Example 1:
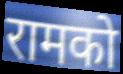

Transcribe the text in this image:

रामको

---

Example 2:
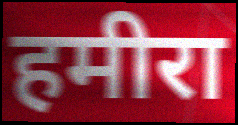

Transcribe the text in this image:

हमीरा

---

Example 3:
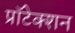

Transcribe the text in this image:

प्रॉटेक्शन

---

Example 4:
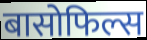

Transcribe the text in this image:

बासोफिल्स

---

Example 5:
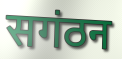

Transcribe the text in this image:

सगंठन